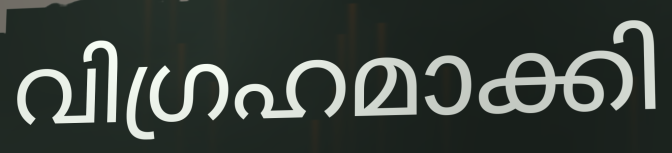
വിഗ്രഹമാക്കി